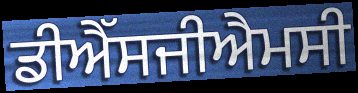
ਡੀਐੱਸਜੀਐਮਸੀ